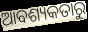
ଆବଶ୍ୟକତାରୁ